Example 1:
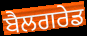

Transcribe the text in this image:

ਬੈਲਗਰੇਡ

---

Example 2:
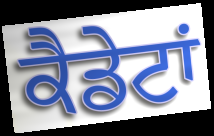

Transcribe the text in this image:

ਕੈਡੇਟਾਂ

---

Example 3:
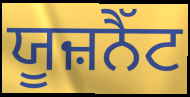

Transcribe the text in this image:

ਯੂਜ਼ਨੈੱਟ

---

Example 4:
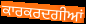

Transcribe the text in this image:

ਕਾਰਕਰਦਗੀਆਂ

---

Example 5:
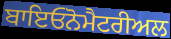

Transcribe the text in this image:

ਬਾਇਓਨੋਮੈਟਰੀਅਲ